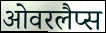
ओवरलैप्स